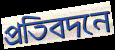
প্রতিবদনে